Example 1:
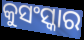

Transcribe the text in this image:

କୁସଂସ୍କାର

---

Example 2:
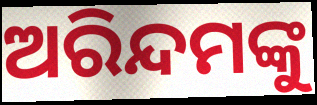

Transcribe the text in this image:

ଅରିନ୍ଦମଙ୍କୁ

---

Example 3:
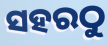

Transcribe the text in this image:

ସହରଠୁ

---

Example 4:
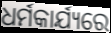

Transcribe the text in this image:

ଧର୍ମକାର୍ଯ୍ୟରେ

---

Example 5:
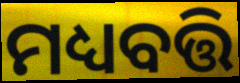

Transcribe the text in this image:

ମଧ୍ୟବତ୍ତି